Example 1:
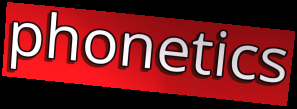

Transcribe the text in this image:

phonetics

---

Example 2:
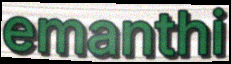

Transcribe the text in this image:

emanthi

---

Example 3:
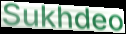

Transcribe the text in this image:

Sukhdeo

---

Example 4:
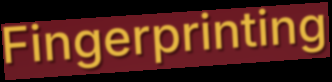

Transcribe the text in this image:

Fingerprinting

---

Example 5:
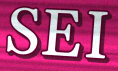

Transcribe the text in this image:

SEI